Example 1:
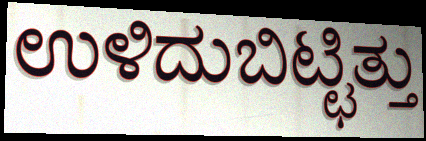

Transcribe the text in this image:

ಉಳಿದುಬಿಟ್ಟಿತ್ತು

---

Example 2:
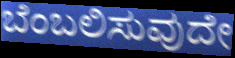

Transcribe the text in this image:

ಬೆಂಬಲಿಸುವುದೇ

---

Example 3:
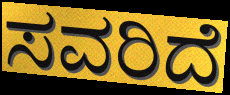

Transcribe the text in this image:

ಸವರಿದೆ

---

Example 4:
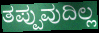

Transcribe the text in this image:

ತಪ್ಪುವುದಿಲ್ಲ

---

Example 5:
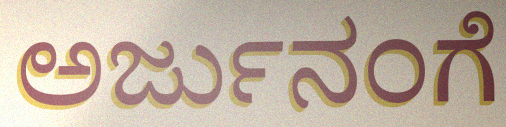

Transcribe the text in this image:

ಅರ್ಜುನಂಗೆ